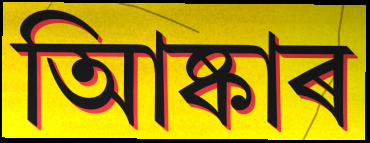
আিষ্কাৰ